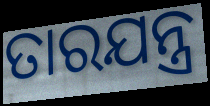
ତାରଯନ୍ତ୍ର